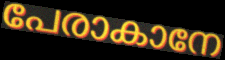
പേരാകാനേ